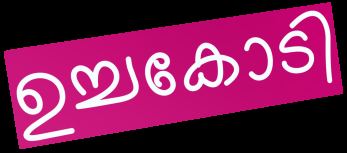
ഉച്ചകോടി